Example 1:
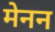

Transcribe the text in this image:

मेनन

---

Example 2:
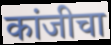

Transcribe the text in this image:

कांजीचा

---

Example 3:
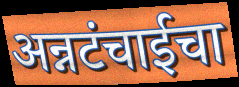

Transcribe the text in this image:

अन्नटंचाईचा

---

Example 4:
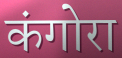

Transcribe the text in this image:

कंगोरा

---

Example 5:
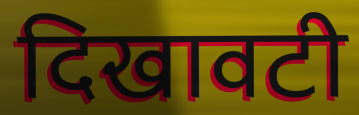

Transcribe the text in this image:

दिखावटी